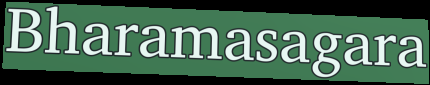
Bharamasagara